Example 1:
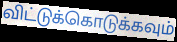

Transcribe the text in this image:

விட்டுக்கொடுக்கவும்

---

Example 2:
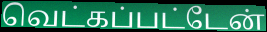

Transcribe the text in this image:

வெட்கப்பட்டேன்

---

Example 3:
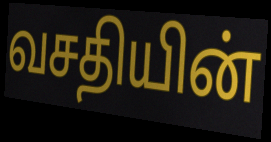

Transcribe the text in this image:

வசதியின்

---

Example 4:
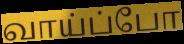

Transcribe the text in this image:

வாய்ப்போ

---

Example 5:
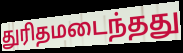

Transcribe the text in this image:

துரிதமடைந்தது